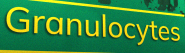
Granulocytes